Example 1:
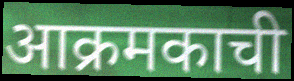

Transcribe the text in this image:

आक्रमकाची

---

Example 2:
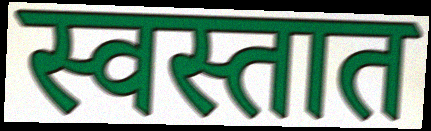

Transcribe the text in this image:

स्वस्तात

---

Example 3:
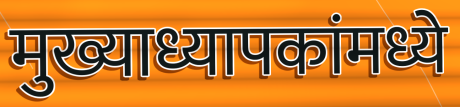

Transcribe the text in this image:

मुख्याध्यापकांमध्ये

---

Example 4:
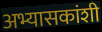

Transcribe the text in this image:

अभ्यासकांशी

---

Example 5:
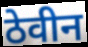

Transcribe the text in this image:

ठेवीन